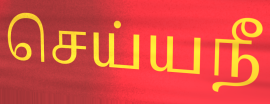
செய்யநீ